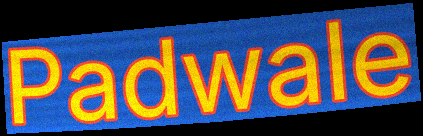
Padwale